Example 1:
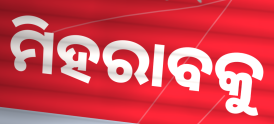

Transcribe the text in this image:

ମିହରାବକୁ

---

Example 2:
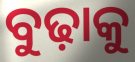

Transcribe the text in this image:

ବୁଢ଼ାକୁ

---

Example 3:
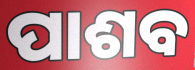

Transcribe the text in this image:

ପାଶବ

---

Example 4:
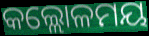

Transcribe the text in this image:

କଲ୍ଲୋଳମୟ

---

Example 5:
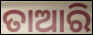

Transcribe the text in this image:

ତାଆରି